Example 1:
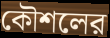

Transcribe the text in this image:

কৌশলের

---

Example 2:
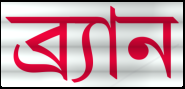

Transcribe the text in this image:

ব্র্যান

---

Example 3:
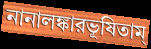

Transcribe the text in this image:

নানালঙ্কারভূষিতাম্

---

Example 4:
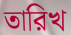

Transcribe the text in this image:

তারিখ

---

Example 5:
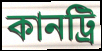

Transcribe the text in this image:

কানট্রি